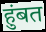
हुंबत